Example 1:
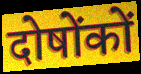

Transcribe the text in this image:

दोषोंकों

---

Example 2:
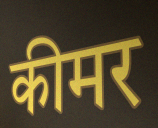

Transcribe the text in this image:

कीमर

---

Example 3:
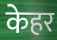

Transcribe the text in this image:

केहर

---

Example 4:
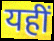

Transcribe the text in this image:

यहीं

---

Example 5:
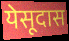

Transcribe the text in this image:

येसूदास